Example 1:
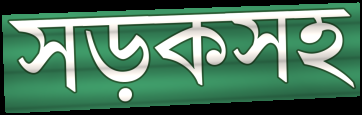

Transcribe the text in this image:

সড়কসহ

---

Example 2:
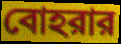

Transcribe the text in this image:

বোহরার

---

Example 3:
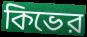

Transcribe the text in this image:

কিভের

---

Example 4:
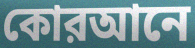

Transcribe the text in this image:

কোরআনে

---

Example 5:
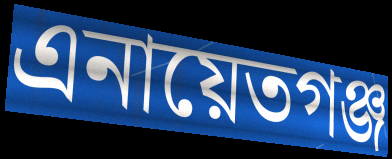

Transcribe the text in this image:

এনায়েতগঞ্জ